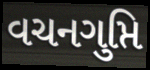
વચનગુપ્તિ